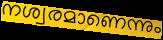
നശ്വരമാണെന്നും